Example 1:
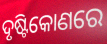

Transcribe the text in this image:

ଦୃଷ୍ଟିକୋଣରେ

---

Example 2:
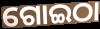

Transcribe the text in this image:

ଗୋଇଠା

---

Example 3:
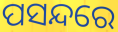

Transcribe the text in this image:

ପସନ୍ଦରେ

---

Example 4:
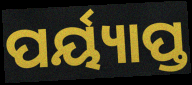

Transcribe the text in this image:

ପର୍ୟ୍ୟାପ୍ତ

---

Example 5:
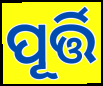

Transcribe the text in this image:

ପୂର୍ତ୍ତି